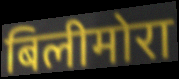
बिलीमोरा